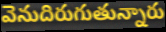
వెనుదిరుగుతున్నారు